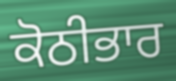
ਕੋਠੀਭਾਰ